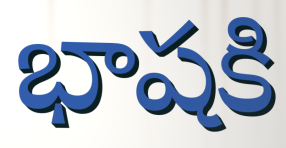
భాషకి